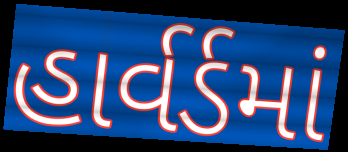
હાર્વર્ડમાં